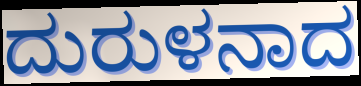
ದುರುಳನಾದ